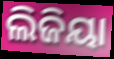
ଲିଜିୟା